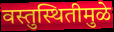
वस्तुस्थितीमुळे